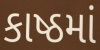
કાષ્ઠમાં